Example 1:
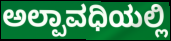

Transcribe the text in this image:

ಅಲ್ಪಾವಧಿಯಲ್ಲಿ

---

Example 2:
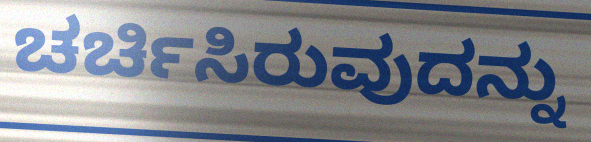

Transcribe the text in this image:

ಚರ್ಚಿಸಿರುವುದನ್ನು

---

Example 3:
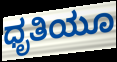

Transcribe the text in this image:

ಧೃತಿಯೂ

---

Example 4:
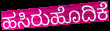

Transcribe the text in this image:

ಹಸಿರುಹೊದಿಕೆ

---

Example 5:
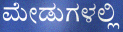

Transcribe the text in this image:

ಮೇಡುಗಳಲ್ಲಿ